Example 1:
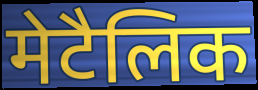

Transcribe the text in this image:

मेटैलिक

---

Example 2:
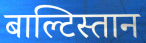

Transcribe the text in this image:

बाल्टिस्तान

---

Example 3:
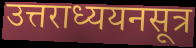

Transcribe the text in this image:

उत्तराध्ययनसूत्र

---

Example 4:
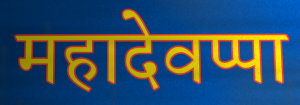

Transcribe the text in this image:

महादेवप्पा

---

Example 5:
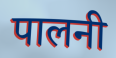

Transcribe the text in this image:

पालनी